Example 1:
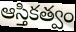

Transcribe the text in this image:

ఆస్తికత్వం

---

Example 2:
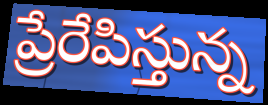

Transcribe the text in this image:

ప్రేరేపిస్తున్న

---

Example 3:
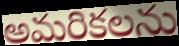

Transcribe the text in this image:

అమరికలను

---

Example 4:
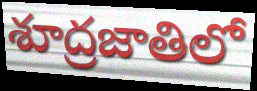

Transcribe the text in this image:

శూద్రజాతిలో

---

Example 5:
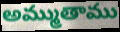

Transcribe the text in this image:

అమ్ముతాము